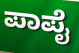
ಪಾಪೈ